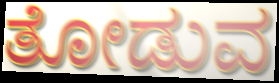
ತೋಡುವ